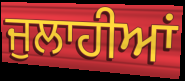
ਜੁਲਾਹੀਆਂ